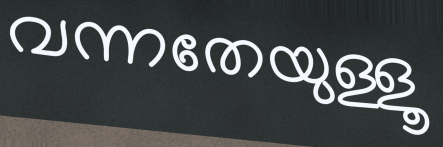
വന്നതേയുള്ളൂ